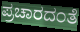
ಪ್ರಚಾರದಂತೆ